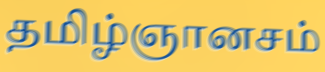
தமிழ்ஞானசம்